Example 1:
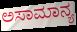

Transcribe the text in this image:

ಅಸಾಮಾನ್ಯ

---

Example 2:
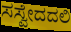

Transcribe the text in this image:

ಸಸ್ವೇದದಲಿ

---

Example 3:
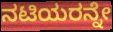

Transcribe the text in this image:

ನಟಿಯರನ್ನೇ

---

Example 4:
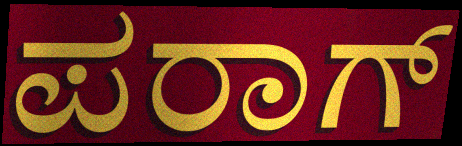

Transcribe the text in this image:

ಪರಾಗ್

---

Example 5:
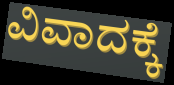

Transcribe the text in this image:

ವಿವಾದಕ್ಕೆ